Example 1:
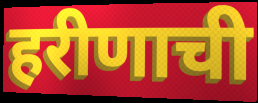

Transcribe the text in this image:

हरीणाची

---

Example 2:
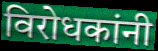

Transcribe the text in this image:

विरोधकांनी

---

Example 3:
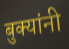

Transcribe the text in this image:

बुक्यांनी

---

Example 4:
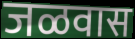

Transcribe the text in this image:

जळवास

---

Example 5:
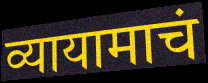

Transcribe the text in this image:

व्यायामाचं